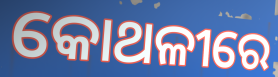
କୋଥଳୀରେ